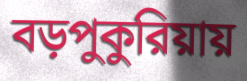
বড়পুকুরিয়ায়